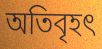
অতিবৃহৎ